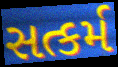
સત્કર્મ